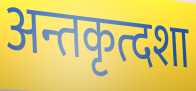
अन्तकृत्दशा